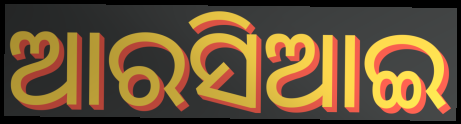
ଆରସିଆଇ